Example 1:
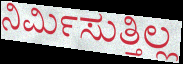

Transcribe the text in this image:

ನಿರ್ಮಿಸುತ್ತಿಲ್ಲ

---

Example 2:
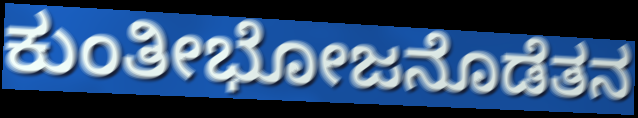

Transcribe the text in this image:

ಕುಂತೀಭೋಜನೊಡೆತನ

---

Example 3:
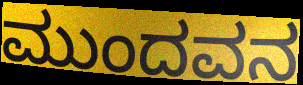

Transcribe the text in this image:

ಮುಂದವನ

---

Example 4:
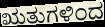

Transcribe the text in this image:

ಋತುಗಳಿಂದ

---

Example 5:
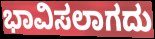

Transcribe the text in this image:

ಭಾವಿಸಲಾಗದು